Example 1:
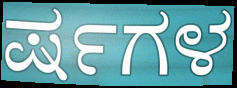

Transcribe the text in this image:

ರ್ಷಗಳ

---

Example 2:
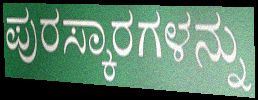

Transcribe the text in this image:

ಪುರಸ್ಕಾರಗಳನ್ನು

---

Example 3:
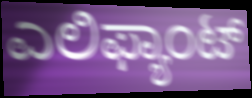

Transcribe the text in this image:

ಎಲಿಫ್ಯಾಂಟ್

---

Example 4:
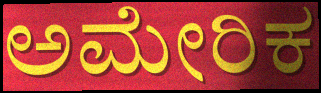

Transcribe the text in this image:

ಅಮೇರಿಕ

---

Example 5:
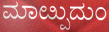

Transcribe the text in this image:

ಮಾೞ್ಪುದುಂ